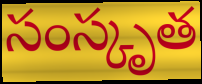
సంస్కృత